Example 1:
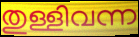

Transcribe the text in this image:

തുള്ളിവന്ന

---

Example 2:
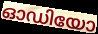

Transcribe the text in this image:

ഓഡിയോ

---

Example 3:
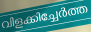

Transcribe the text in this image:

വിളക്കിച്ചേർത്ത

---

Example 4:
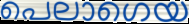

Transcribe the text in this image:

പെലാഗെയ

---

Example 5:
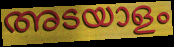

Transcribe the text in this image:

അടയാളം